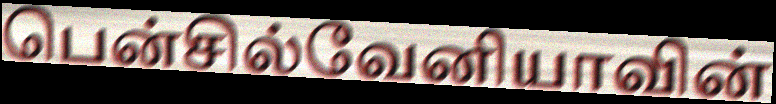
பென்சில்வேனியாவின்